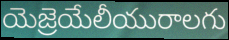
యెజ్రెయేలీయురాలగు